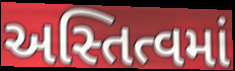
અસ્તિત્વમાં